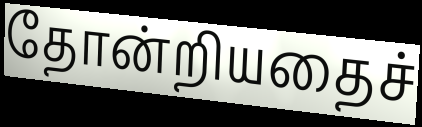
தோன்றியதைச்